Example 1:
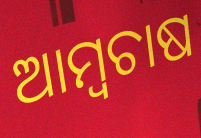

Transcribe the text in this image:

ଆମ୍ୱଚାଷ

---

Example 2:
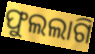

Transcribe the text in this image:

ଫୁଲଲାଗି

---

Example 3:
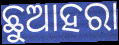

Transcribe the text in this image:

ଛୁଆହରା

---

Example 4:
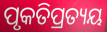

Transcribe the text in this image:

ପୃକତିପ୍ରତ୍ୟୟ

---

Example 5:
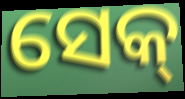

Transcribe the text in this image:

ସେକ୍